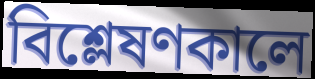
বিশ্লেষণকালে